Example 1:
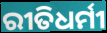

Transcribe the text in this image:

ରୀତିଧର୍ମୀ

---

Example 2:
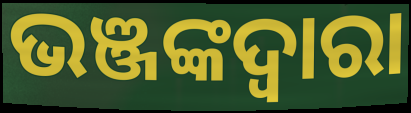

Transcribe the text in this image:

ଭଞ୍ଜଙ୍କଦ୍ୱାରା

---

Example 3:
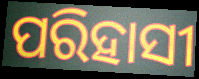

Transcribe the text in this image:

ପରିହାସୀ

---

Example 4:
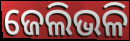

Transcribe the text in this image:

ଜେଲିଭଳି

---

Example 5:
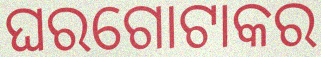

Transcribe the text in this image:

ଘରଗୋଟାକର